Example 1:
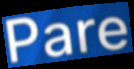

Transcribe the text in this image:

Pare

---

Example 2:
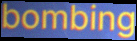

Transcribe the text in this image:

bombing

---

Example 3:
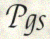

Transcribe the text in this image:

Pgs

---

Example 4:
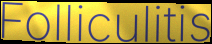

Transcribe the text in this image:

Folliculitis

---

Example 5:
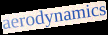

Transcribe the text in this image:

aerodynamics